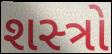
શસ્‍ત્રો